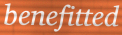
benefitted